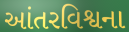
આંતરવિશ્વના